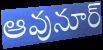
ఆవునూర్